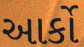
આર્કો